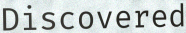
Discovered